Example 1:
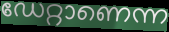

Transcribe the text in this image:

ഡേറ്റാണെന്ന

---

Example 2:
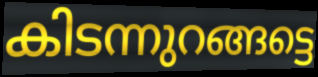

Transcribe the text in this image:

കിടന്നുറങ്ങട്ടെ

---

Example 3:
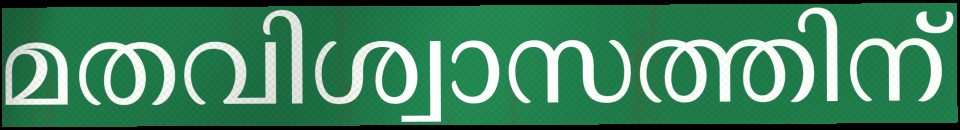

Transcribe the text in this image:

മതവിശ്വാസത്തിന്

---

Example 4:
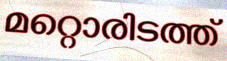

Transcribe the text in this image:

മറ്റൊരിടത്ത്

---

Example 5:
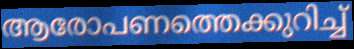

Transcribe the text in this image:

ആരോപണത്തെക്കുറിച്ച്